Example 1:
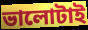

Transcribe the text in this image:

ভালোটাই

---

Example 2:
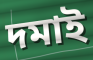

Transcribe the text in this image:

দমাই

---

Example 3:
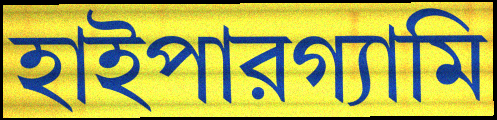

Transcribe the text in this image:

হাইপারগ্যামি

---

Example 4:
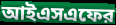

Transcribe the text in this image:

আইএসএফের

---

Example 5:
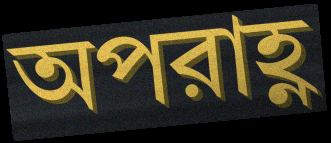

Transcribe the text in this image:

অপরাহ্ণ